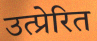
उत्‍प्रेरित